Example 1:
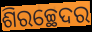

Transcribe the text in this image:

ଶିରଚ୍ଛେଦର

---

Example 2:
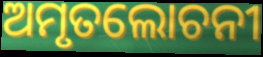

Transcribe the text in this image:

ଅମୃତଲୋଚନୀ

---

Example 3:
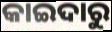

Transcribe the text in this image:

କାଇଦାରୁ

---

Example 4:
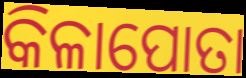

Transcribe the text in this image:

କିଳାପୋତା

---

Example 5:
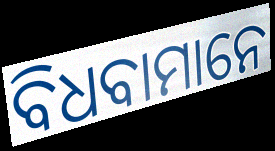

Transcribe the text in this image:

ବିଧବାମାନେ